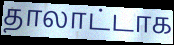
தாலாட்டாக